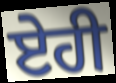
ਏਹੀ